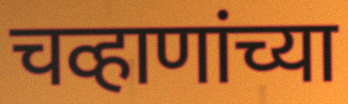
चव्हाणांच्या